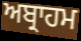
ਅਬ੍ਰਾਹਮ